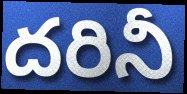
దరినీ